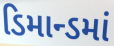
ડિમાન્ડમાં